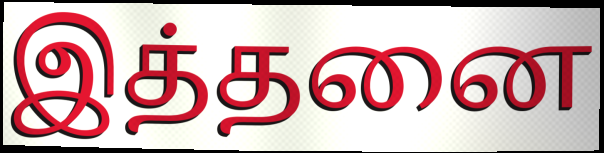
இத்தனை